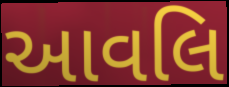
આવલિ